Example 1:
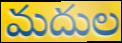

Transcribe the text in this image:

మదుల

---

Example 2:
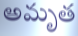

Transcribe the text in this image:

అమృత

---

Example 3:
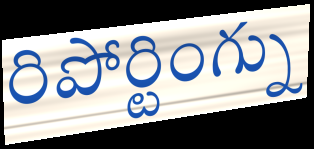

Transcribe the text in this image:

రిపోర్టింగ్ను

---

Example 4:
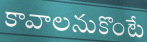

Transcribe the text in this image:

కావాలనుకొంటే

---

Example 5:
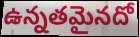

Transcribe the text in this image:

ఉన్నతమైనదో